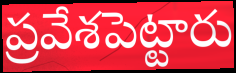
ప్రవేశపెట్టారు